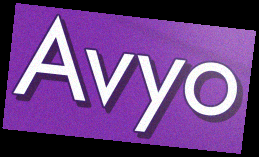
Avyo